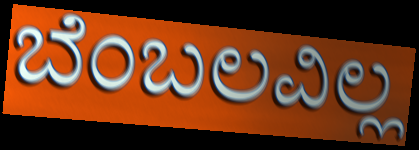
ಬೆಂಬಲವಿಲ್ಲ